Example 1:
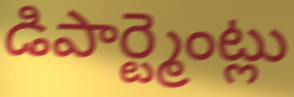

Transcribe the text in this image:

డిపార్ట్మెంట్లు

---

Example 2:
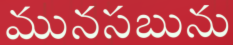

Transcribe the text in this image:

మునసబును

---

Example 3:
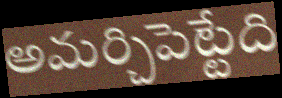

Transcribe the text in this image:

అమర్చిపెట్టేది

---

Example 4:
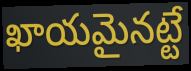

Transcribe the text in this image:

ఖాయమైనట్టే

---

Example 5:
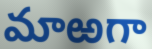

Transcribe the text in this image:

మాఱగా